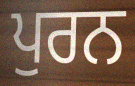
ਪੁਰਨ